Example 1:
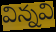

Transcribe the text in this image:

విన్నవి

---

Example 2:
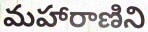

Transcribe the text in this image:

మహారాణిని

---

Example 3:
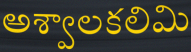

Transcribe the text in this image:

అశ్వాలకలిమి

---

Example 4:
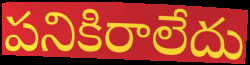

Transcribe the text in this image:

పనికిరాలేదు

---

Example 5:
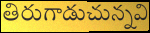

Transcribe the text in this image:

తిరుగాడుచున్నవి